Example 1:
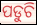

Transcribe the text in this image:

ପଡୁଚି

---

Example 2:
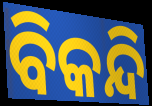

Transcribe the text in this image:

ବିକନ୍ଦି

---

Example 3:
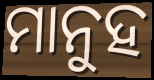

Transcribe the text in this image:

ମାନୁହ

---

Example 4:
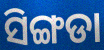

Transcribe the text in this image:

ସିଙ୍ଗଡା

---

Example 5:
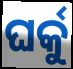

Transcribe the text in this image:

ଘର୍କୁ